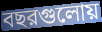
বছরগুলোয়